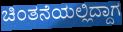
ಚಿಂತನೆಯಲ್ಲಿದ್ದಾಗ